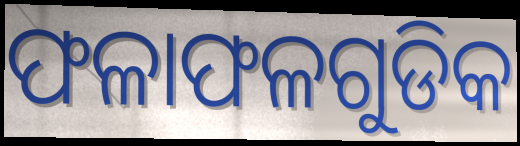
ଫଳାଫଳଗୁଡିକ